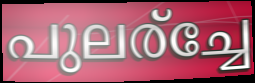
പുലര്ച്ചേ